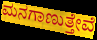
ಮನಗಾಣುತ್ತೇವೆ